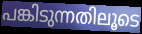
പങ്കിടുന്നതിലൂടെ